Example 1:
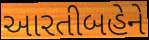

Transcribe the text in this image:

આરતીબહેને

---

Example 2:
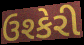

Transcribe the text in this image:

ઉશ્કેરી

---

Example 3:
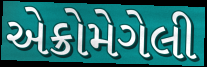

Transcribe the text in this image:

એક્રોમેગેલી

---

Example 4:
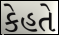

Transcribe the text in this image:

કેહતે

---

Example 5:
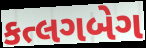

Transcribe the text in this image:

કત્લગબેગ